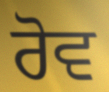
ਰੋਵ